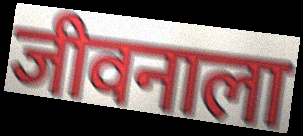
जीवनाला